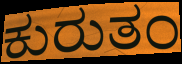
ಕುರುತಂ